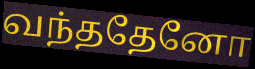
வந்ததேனோ